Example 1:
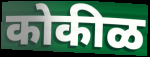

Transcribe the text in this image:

कोकीळ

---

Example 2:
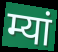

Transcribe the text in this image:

म्यां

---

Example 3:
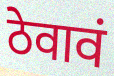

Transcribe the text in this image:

ठेवावं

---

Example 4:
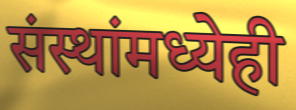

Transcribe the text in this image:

संस्थांमध्येही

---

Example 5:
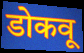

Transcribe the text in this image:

डोकवू